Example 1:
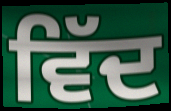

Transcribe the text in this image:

ਵਿੱਦ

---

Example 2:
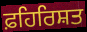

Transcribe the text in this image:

ਫ਼ਹਿਰਿਸ਼ਤ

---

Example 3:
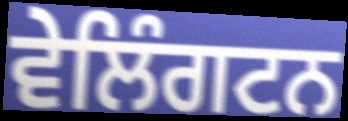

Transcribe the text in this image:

ਵੇਲਿੰਗਟਨ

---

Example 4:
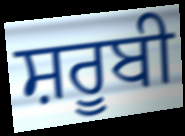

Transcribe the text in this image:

ਸ਼ਰੂਬੀ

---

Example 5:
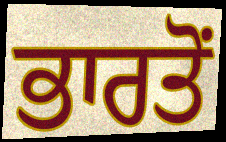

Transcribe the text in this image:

ਭਾਰਤੋਂ